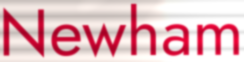
Newham